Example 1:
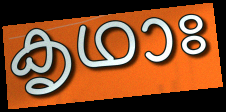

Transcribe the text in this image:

കൃഥാഃ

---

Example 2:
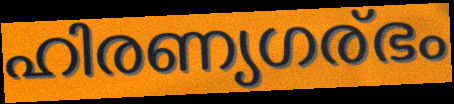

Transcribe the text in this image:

ഹിരണ്യഗര്ഭം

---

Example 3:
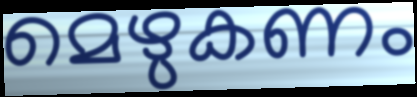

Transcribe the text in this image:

മെഴുകണം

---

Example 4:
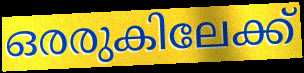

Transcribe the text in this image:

ഒരരുകിലേക്ക്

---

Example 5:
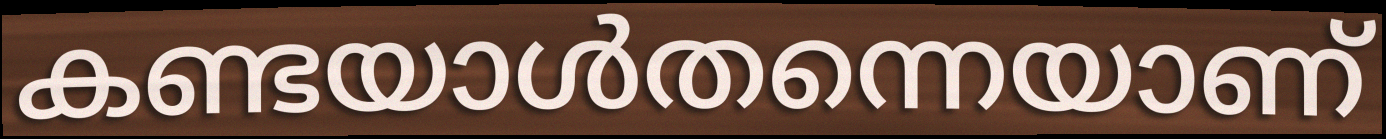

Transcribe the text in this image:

കണ്ടയാൾതന്നെയാണ്